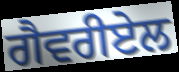
ਗੈਵਰੀਏਲ